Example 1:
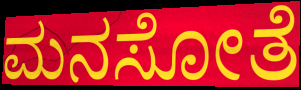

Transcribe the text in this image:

ಮನಸೋತೆ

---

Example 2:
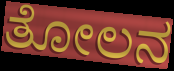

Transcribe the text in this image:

ತೋಲನ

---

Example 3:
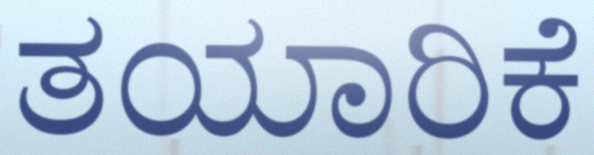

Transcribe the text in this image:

ತಯಾರಿಕೆ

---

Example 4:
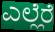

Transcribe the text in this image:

ಎಲ್ಲೆರೆ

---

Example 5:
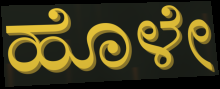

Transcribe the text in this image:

ಹೊಳೇ